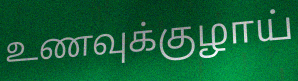
உணவுக்குழாய்